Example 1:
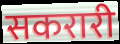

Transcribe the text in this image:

सकरारी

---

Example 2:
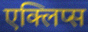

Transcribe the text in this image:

एक्लिप्स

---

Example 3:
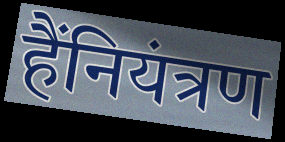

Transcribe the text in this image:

हैंनियंत्रण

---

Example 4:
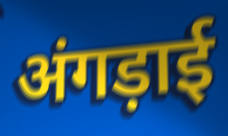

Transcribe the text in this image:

अंगड़ाई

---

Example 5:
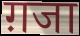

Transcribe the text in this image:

ग़जा